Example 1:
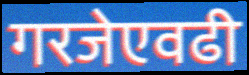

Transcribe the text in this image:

गरजेएवढी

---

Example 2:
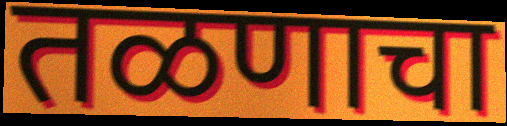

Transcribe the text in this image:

तळणाचा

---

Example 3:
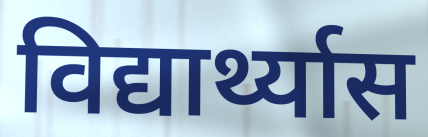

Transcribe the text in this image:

विद्यार्थ्यास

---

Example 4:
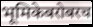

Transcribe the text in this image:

भूमिकेबरोबरच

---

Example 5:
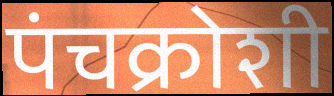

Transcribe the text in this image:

पंचक्रोशी